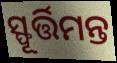
ସ୍ଫୂର୍ତ୍ତିମନ୍ତ